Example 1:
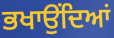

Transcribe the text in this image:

ਭਖਾਉਂਦਿਆਂ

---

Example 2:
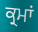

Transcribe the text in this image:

ਕ੍ਰਮਾਂ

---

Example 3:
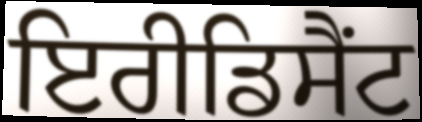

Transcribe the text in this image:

ਇਰੀਡਿਸੈਂਟ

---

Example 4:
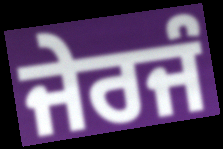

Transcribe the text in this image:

ਜੇਰਜੰ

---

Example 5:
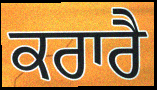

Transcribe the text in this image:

ਕਰਾਰੈ